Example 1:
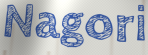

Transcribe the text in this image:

Nagori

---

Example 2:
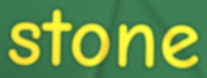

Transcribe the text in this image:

stone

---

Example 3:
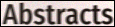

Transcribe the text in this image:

Abstracts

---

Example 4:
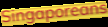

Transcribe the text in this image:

Singaporeans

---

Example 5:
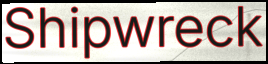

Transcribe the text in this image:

Shipwreck